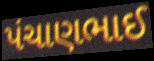
પંચાણભાઈ